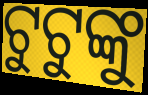
ଟୁଟୁଙ୍କୁ